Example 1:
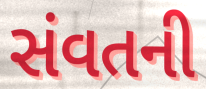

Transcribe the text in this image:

સંવતની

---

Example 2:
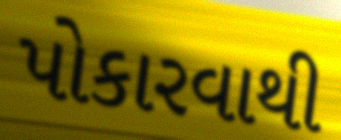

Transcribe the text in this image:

પોકારવાથી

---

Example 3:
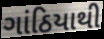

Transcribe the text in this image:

ગાંઠિયાથી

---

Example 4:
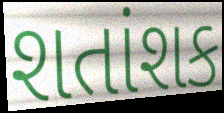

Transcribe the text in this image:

શતાંશક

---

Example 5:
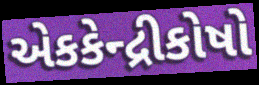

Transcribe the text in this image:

એકકેન્દ્રીકોષો